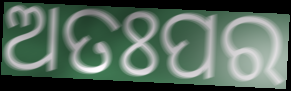
ଅତଃପର